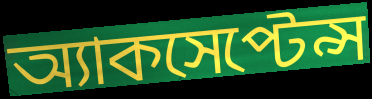
অ্যাকসেপ্টেন্স